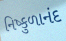
નિષ્કુળાનંદ